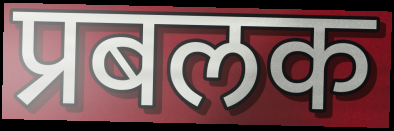
प्रबलक